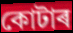
কোটাৰ